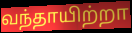
வந்தாயிற்றா